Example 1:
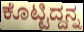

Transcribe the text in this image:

ಕೊಟ್ಟಿದ್ದನ್ನ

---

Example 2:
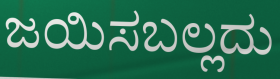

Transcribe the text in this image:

ಜಯಿಸಬಲ್ಲದು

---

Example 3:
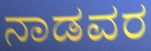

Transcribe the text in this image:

ನಾಡವರ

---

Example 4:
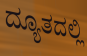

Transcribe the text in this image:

ದ್ಯೂತದಲ್ಲಿ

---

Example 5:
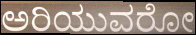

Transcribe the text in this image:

ಅರಿಯುವರೋ